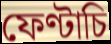
ফেণ্টাচি